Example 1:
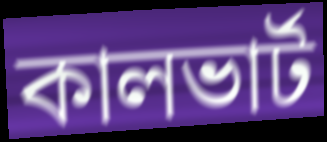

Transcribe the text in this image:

কালভার্ট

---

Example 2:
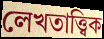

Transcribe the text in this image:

লেখতাত্ত্বিক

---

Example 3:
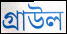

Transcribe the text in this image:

গ্রাউল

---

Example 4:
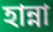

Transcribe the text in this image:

হান্না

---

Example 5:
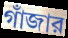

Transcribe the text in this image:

গাঁজার